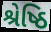
શ્રેષ્ઠિ